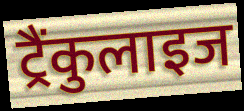
ट्रैंकुलाइज